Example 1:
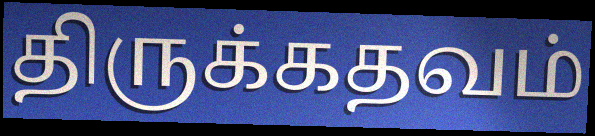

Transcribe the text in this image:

திருக்கதவம்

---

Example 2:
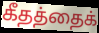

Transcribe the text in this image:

கீதத்தைக்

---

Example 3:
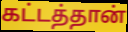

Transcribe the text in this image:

கட்டத்தான்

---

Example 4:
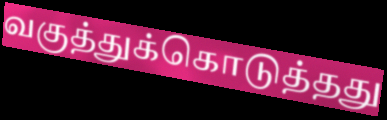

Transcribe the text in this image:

வகுத்துக்கொடுத்தது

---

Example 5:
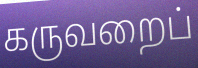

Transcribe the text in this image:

கருவறைப்